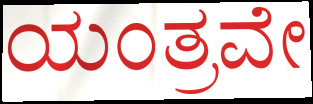
ಯಂತ್ರವೇ